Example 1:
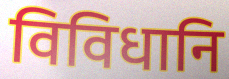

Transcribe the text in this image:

विविधानि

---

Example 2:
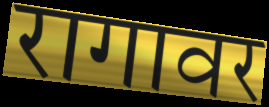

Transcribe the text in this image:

रागावर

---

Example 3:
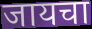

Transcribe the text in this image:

जायचा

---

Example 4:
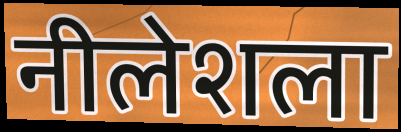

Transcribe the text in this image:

नीलेशला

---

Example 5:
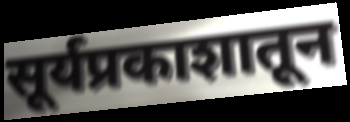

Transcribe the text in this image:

सूर्यप्रकाशातून